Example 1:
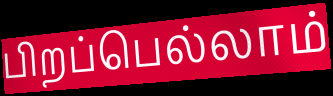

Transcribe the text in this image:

பிறப்பெல்லாம்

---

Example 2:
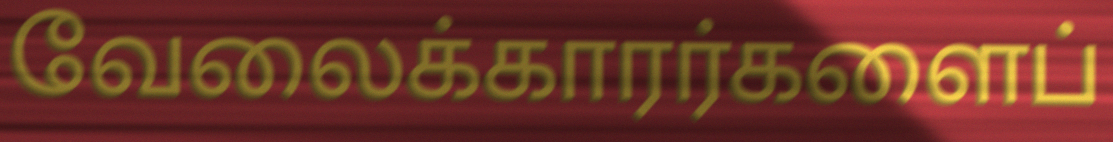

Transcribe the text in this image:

வேலைக்காரர்களைப்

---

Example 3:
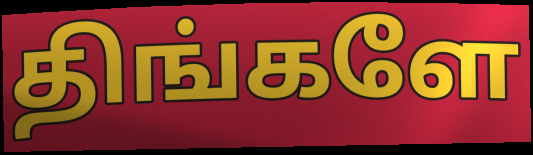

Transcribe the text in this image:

திங்களே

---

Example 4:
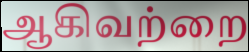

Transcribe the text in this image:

ஆகிவற்றை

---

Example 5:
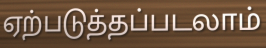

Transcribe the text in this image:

ஏற்படுத்தப்படலாம்